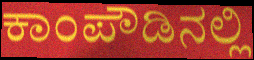
ಕಾಂಪೌಡಿನಲ್ಲಿ